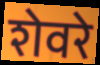
शेवरे